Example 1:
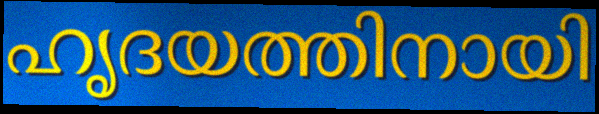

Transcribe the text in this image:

ഹൃദയത്തിനായി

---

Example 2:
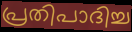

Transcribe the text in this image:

പ്രതിപാദിച്ച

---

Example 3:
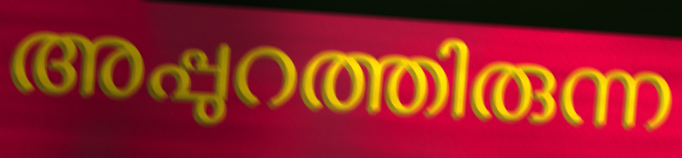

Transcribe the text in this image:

അപ്പുറത്തിരുന്ന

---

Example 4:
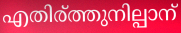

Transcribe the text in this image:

എതിര്ത്തുനില്പാന്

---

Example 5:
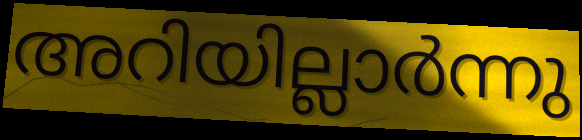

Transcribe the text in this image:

അറിയില്ലാർന്നു